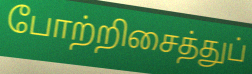
போற்றிசைத்துப்